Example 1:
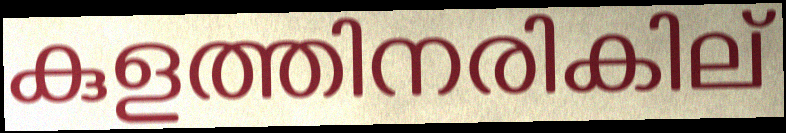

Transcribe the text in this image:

കുളത്തിനരികില്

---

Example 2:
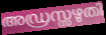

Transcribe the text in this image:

അഡ്രസ്സഴുതി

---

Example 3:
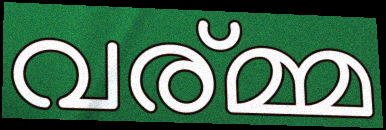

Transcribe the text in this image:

വര്മ്മ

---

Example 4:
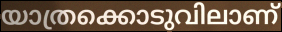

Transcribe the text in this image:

യാത്രക്കൊടുവിലാണ്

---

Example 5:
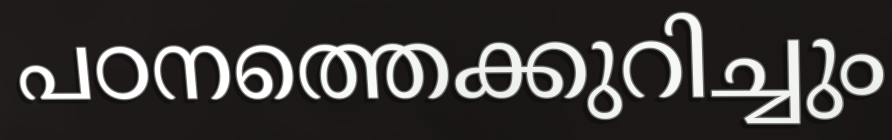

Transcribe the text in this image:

പഠനത്തെക്കുറിച്ചും